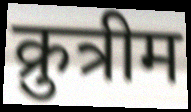
क्रुत्रीम